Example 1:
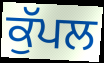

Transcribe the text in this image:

ਕੁੱਪਲ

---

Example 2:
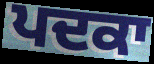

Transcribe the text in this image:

ਪਦਕਾ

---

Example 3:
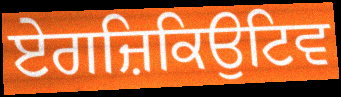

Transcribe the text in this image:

ਏਗਜ਼ਿਕਿਉਟਿਵ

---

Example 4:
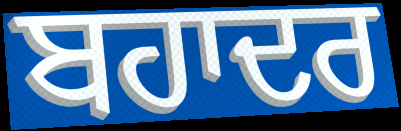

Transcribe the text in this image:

ਬਹਾਦਰ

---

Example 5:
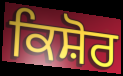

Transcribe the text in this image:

ਕਿਸ਼ੋਰ